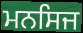
ਮਨਸਿਜ